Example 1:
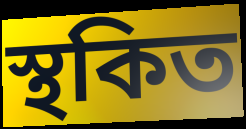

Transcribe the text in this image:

স্থকিত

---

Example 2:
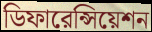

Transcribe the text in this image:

ডিফারেন্সিয়েশন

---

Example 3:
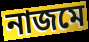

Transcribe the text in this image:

নাজমে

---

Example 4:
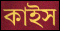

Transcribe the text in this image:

কাইস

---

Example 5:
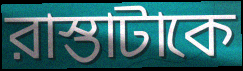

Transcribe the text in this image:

রাস্তাটাকে